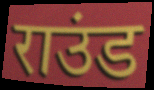
राउंड